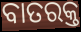
ବାତରକ୍ତ